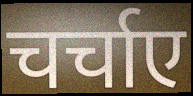
चर्चाए